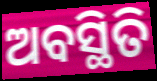
ଅବସ୍ଥିତି